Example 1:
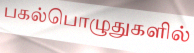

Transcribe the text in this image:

பகல்பொழுதுகளில்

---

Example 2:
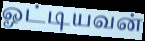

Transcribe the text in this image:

ஓட்டியவன்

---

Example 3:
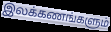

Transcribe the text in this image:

இலக்கணங்களும்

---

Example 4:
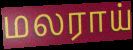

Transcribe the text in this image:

மலராய்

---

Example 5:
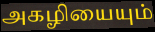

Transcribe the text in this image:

அகழியையும்